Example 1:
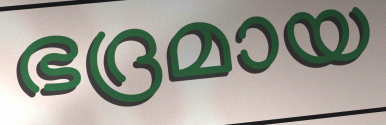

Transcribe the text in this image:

ഭദ്രമായ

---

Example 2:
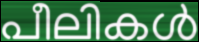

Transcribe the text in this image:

പീലികൾ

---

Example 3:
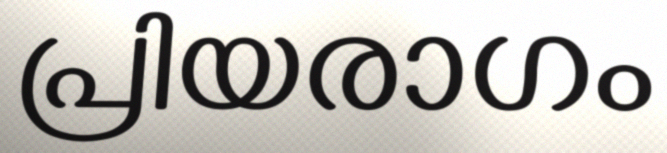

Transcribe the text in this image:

പ്രിയരാഗം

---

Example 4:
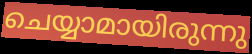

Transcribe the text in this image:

ചെയ്യാമായിരുന്നു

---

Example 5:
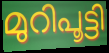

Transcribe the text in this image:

മുറിപൂട്ടി